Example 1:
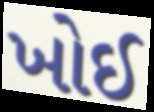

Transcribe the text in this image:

ખોઈ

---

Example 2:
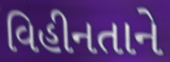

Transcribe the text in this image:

વિહીનતાને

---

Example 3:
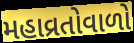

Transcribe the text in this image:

મહાવ્રતોવાળો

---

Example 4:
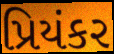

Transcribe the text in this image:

પ્રિયંકર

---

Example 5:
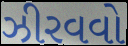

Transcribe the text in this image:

ઝીરવવો